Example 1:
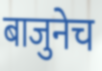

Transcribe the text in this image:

बाजुनेच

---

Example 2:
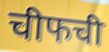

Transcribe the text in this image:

चीफची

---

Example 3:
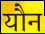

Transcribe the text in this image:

यौन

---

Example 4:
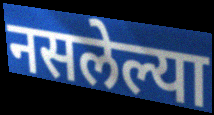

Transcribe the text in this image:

नसलेल्या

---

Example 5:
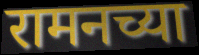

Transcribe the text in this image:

रामनच्या